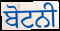
ਬੋਟਨੀ